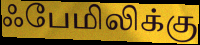
ஃபேமிலிக்கு